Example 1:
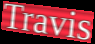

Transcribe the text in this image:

Travis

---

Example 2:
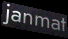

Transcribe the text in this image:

janmat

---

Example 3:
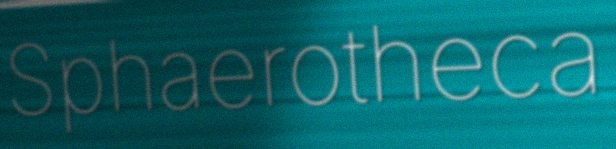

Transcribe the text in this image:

Sphaerotheca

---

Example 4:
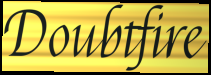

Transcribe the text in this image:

Doubtfire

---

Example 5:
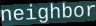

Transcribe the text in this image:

neighbor